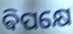
ଵିପକ୍ଷେ